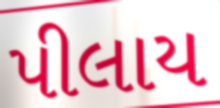
પીલાય